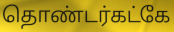
தொண்டர்கட்கே